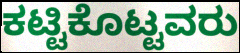
ಕಟ್ಟಿಕೊಟ್ಟವರು